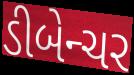
ડીબેન્ચર